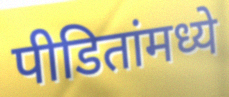
पीडितांमध्ये